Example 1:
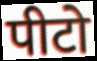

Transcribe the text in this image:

पीटो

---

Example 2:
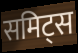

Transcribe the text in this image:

समिट्स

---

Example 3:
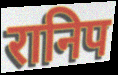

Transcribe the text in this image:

रानिप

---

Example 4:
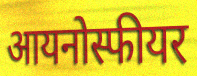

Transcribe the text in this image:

आयनोस्फीयर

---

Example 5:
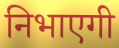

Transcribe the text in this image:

निभाएगी